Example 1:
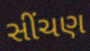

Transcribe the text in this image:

સીંચણ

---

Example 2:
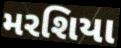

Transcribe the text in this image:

મરશિયા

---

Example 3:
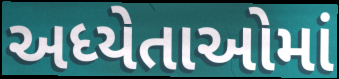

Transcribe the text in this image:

અધ્યેતાઓમાં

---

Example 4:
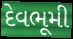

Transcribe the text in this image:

દેવભૂમી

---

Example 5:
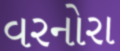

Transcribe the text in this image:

વરનોરા